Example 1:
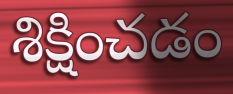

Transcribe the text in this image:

శిక్షించడం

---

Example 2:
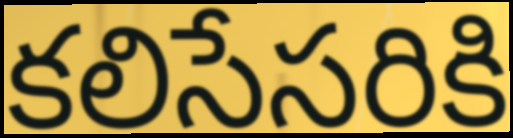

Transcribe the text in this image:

కలిసేసరికి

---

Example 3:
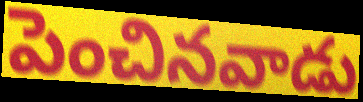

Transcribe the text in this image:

పెంచినవాడు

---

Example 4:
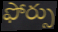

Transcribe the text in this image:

ఫోర్సు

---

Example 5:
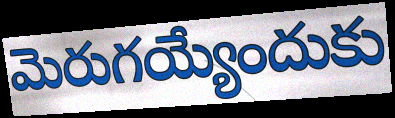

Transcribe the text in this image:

మెరుగయ్యేందుకు